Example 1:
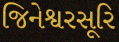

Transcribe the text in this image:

જિનેશ્વરસૂરિ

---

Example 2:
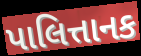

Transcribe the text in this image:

પાલિત્તાનક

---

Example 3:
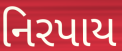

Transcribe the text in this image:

નિરપાય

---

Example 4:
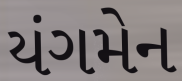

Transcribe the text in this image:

યંગમેન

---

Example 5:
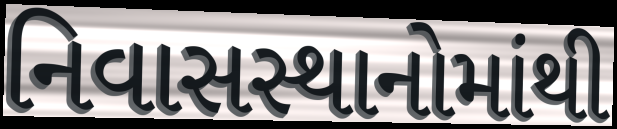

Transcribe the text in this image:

નિવાસસ્થાનોમાંથી